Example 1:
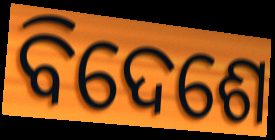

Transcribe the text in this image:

ବିଦେଶେ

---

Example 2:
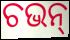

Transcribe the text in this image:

ଚଭନ୍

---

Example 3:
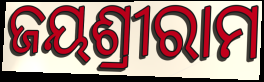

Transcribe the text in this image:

ଜୟଶ୍ରୀରାମ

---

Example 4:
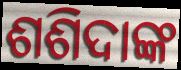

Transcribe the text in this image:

ଶଶିଦାଙ୍କ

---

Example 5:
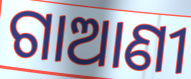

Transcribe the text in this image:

ଗାଆଣୀ